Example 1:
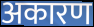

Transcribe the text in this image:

अकारण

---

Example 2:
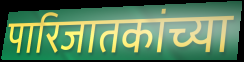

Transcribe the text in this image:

पारिजातकांच्या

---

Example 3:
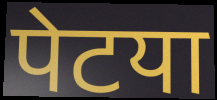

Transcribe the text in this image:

पेटया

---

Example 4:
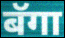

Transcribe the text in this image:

बॅगा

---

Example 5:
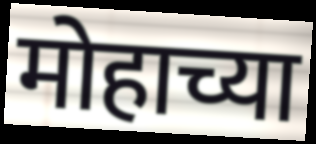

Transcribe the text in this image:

मोहाच्या